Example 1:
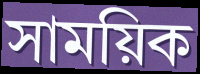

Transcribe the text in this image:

সাময়িক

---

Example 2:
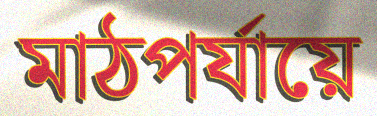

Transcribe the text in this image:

মাঠপর্যায়ে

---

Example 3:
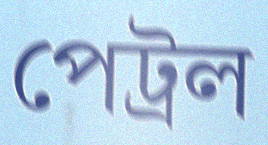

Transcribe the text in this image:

পেট্রল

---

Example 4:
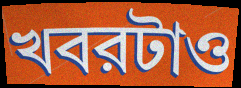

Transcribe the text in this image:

খবরটাও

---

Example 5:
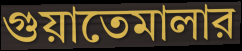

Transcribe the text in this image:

গুয়াতেমালার